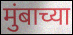
मुंबाच्या